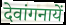
देवांगनायें